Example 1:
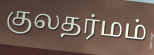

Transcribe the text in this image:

குலதர்மம்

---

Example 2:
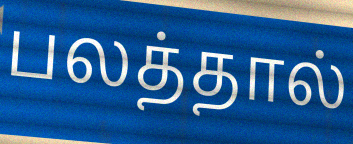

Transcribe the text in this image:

பலத்தால்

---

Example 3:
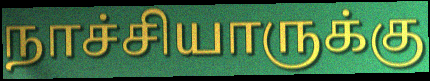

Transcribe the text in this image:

நாச்சியாருக்கு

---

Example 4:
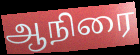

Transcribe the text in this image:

ஆநிரை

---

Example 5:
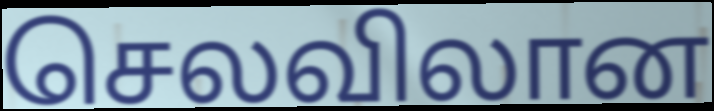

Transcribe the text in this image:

செலவிலான